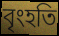
বৃংহতি